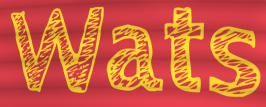
Wats